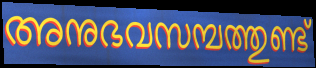
അനുഭവസമ്പത്തുണ്ട്